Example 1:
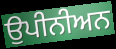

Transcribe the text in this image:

ਉਪੀਨੀਅਨ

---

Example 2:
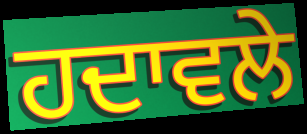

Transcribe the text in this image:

ਹਦਾਵਲੇ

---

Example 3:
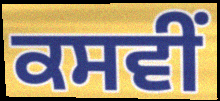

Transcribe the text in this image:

ਕਸਵੀਂ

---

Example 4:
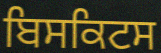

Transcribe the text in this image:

ਬਿਸਕਿਟਸ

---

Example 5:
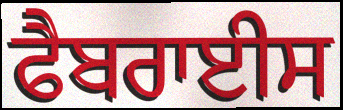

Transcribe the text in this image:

ਫੈਬਰਾਈਸ